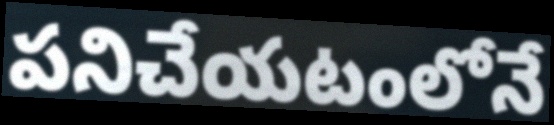
పనిచేయటంలోనే